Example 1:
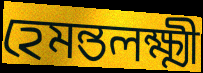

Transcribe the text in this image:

হেমন্তলক্ষ্মী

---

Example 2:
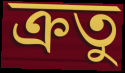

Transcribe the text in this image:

ক্রতু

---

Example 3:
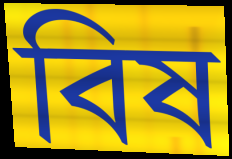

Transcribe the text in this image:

বিষ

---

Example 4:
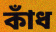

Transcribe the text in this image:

কাঁধ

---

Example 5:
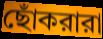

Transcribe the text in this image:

ছোঁকরারা